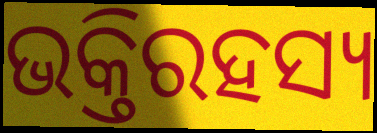
ଭକ୍ତିରହସ୍ୟ